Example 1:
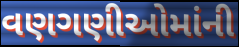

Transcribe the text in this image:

વણગણીઓમાંની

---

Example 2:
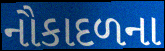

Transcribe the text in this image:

નૌકાદળના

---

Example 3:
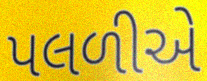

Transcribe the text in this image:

પલળીએ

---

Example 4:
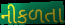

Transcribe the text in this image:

નીકળતા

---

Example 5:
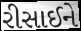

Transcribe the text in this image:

રીસાઈને